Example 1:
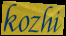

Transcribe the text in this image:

kozhi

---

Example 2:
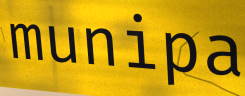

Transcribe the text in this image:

munipa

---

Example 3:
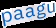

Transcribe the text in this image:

paagu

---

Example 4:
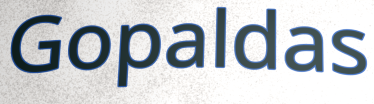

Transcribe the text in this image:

Gopaldas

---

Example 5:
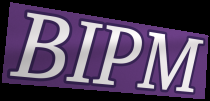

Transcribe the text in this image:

BIPM